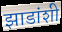
झाडांशी